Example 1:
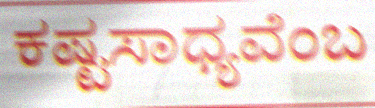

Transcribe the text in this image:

ಕಷ್ಟಸಾಧ್ಯವೆಂಬ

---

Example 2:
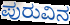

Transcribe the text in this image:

ಪುರುವಿನ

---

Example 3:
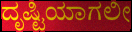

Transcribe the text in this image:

ದೃಷ್ಟಿಯಾಗಲೀ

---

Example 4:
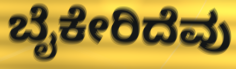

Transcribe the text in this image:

ಬೈಕೇರಿದೆವು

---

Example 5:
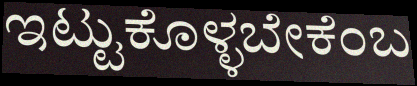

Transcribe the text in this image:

ಇಟ್ಟುಕೊಳ್ಳಬೇಕೆಂಬ